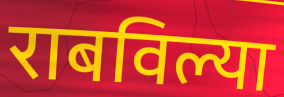
राबविल्या